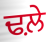
ਢਲ਼ੇ